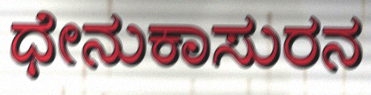
ಧೇನುಕಾಸುರನ